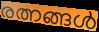
രത്നങ്ങൾ